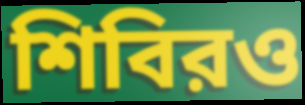
শিবিরও